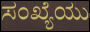
ಸಂಖ್ಯೆಯು